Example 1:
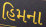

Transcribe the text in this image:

હિમના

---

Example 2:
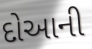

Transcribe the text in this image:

દોઆની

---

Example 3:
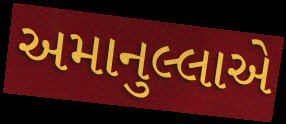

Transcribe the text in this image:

અમાનુલ્લાએ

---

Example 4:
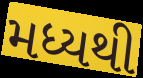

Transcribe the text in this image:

મધ્યથી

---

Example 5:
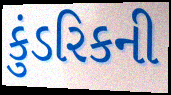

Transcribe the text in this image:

કુંડરિકની